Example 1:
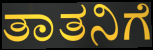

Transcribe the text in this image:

ತಾತನಿಗೆ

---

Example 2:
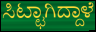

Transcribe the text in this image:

ಸಿಟ್ಟಾಗಿದ್ದಾಳೆ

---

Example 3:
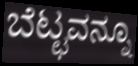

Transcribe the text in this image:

ಬೆಟ್ಟವನ್ನೂ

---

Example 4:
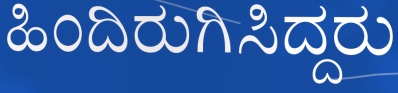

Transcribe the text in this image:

ಹಿಂದಿರುಗಿಸಿದ್ದರು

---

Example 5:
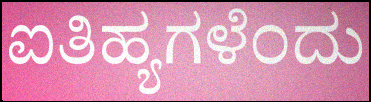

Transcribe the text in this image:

ಐತಿಹ್ಯಗಳೆಂದು